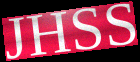
JHSS